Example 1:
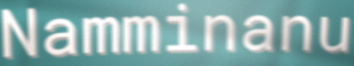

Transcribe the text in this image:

Namminanu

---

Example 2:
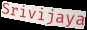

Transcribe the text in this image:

Srivijaya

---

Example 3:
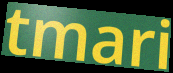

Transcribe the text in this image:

tmari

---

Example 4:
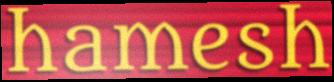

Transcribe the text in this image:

hamesh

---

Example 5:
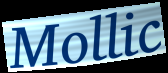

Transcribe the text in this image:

Mollic